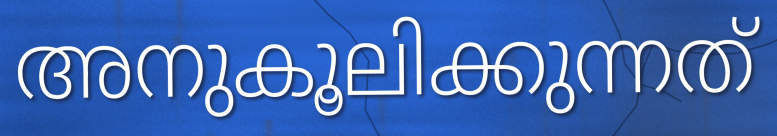
അനുകൂലിക്കുന്നത്